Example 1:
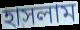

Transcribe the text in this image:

হাসলাম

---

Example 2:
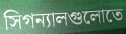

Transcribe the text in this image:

সিগন্যালগুলোতে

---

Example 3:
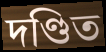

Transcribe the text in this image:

দণ্ডিত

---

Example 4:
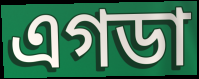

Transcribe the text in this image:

এগডা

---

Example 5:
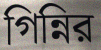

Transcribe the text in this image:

গিন্নির